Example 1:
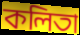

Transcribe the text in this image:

কলিতা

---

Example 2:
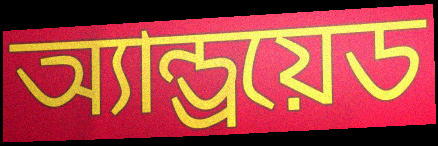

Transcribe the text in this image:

অ্যান্ড্রয়েড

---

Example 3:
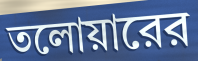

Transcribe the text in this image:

তলোয়ারের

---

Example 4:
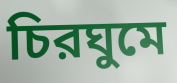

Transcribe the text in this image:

চিরঘুমে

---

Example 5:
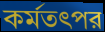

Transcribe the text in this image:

কর্মতৎপর